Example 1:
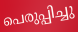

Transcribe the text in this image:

പെരുപ്പിച്ചു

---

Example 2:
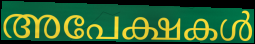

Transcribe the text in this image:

അപേക്ഷകൾ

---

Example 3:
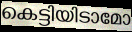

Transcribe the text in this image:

കെട്ടിയിടാമോ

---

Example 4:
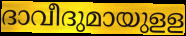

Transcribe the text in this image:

ദാവീദുമായുളള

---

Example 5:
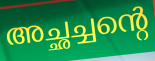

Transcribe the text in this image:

അച്ഛച്ചന്റെ